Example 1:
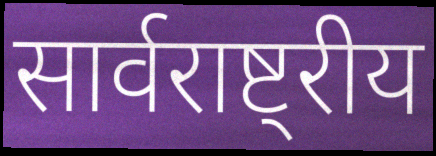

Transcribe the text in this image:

सार्वराष्ट्रीय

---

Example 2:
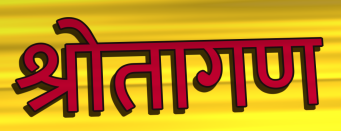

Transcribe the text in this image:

श्रोतागण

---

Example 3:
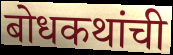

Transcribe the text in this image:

बोधकथांची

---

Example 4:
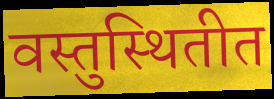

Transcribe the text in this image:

वस्तुस्थितीत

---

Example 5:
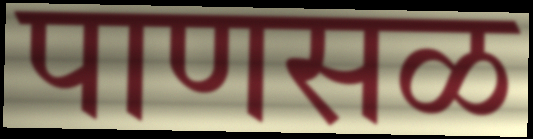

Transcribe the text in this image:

पाणसळ